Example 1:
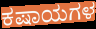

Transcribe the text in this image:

ಕಷಾಯಗಳ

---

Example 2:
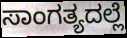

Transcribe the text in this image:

ಸಾಂಗತ್ಯದಲ್ಲೆ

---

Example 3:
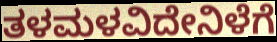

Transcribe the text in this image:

ತಳಮಳವಿದೇನಿಳೆಗೆ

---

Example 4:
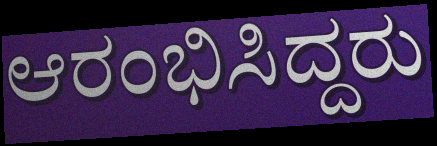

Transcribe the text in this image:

ಆರಂಭಿಸಿದ್ದರು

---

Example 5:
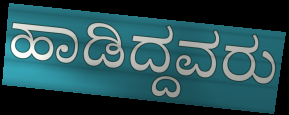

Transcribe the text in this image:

ಹಾಡಿದ್ದವರು